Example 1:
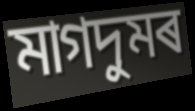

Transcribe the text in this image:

মাগদুমৰ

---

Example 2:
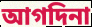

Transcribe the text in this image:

আগদিনা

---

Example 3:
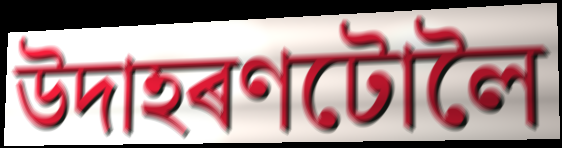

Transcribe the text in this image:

উদাহৰণটোলৈ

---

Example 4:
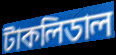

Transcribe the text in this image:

টাকলিডাল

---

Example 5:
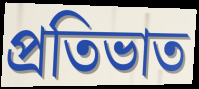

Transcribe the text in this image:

প্ৰতিভাত